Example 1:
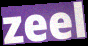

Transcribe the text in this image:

zeel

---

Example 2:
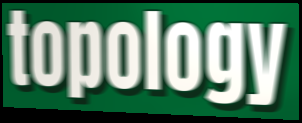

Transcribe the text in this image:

topology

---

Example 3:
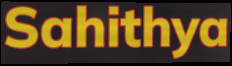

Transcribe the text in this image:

Sahithya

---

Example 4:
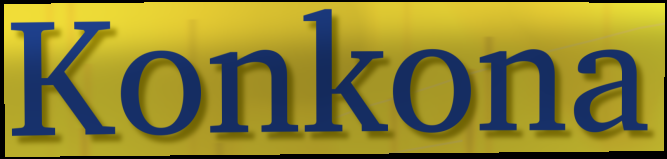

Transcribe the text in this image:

Konkona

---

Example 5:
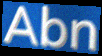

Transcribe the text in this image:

Abn